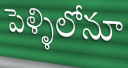
పెళ్ళిలోనూ